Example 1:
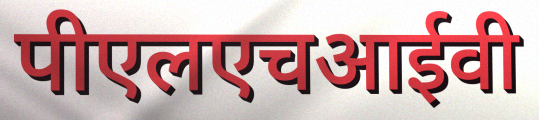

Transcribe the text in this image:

पीएलएचआईवी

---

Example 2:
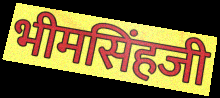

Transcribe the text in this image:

भीमसिंहजी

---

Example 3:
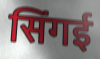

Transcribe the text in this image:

सिंगई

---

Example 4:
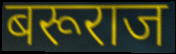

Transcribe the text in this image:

बरूराज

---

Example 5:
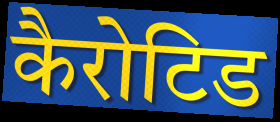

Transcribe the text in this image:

कैरोटिड